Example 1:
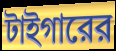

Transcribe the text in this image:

টাইগারের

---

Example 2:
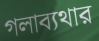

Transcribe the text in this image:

গলাব্যথার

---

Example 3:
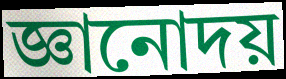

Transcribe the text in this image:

জ্ঞানোদয়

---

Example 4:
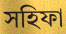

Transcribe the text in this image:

সহিফা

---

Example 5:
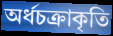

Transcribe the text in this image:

অর্ধচক্রাকৃতি